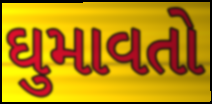
ઘુમાવતો